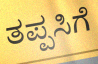
ತಪ್ಪಸಿಗೆ